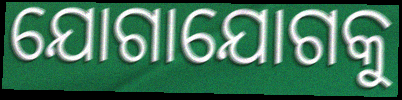
ଯୋଗାଯୋଗକୁ